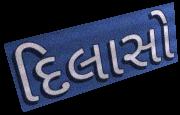
દિલાસો